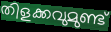
തിളക്കവുമുണ്ട്